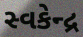
સ્વકેન્દ્ર